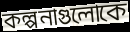
কল্পনাগুলোকে